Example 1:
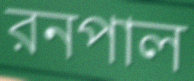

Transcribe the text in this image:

রনপাল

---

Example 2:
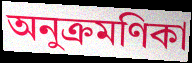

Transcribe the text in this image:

অনুক্রমণিকা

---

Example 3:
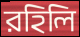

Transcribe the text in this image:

রহিলি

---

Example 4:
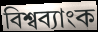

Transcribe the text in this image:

বিশ্বব্যাংক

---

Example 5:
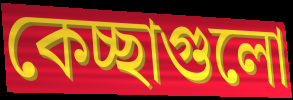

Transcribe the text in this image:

কেচ্ছাগুলো